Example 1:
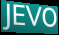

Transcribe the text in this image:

JEVO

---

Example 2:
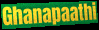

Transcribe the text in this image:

Ghanapaathi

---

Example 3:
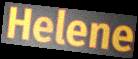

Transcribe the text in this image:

Helene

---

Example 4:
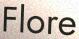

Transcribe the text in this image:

Flore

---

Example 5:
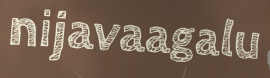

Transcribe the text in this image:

nijavaagalu